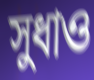
সুধাও